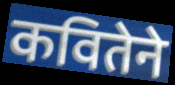
कवितेने